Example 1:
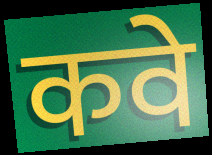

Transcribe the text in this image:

कवे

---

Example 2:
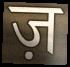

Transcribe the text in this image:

ज़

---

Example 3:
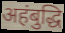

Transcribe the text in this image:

अहंबुद्धि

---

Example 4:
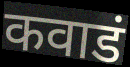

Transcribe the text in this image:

कवाडं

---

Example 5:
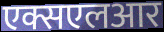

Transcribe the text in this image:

एक्सएलआर